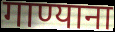
गाण्याना